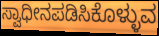
ಸ್ವಾಧೀನಪಡಿಸಿಕೊಳ್ಳುವ